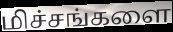
மிச்சங்களை